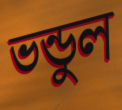
ভন্ডুল